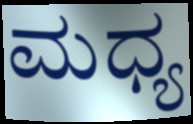
ಮಧ್ಯ